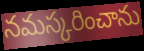
నమస్కరించాను